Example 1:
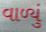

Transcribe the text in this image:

વાળ્યું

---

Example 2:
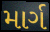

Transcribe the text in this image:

માર્ગ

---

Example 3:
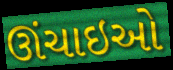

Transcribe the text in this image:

ઊંચાઇઓ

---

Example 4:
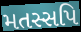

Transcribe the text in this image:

મતસ્સપિ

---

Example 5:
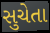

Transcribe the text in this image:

સુચેતા